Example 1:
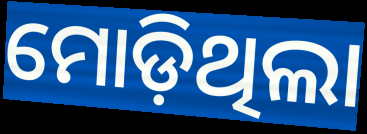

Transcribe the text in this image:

ମୋଡ଼ିଥିଲା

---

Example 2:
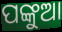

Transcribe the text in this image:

ପଙ୍କୁଆ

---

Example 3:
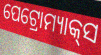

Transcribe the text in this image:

ପେଟ୍ରୋମ୍ୟାକ୍‌ସ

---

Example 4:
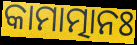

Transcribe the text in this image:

କାମାତ୍ମାନଃ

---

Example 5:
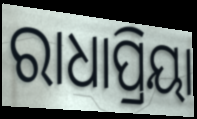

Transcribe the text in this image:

ରାଧାପ୍ରିୟା